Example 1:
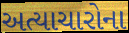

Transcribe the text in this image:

અત્યાચારોના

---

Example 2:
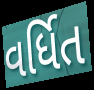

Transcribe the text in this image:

વર્ધિત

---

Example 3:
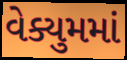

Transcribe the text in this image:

વેક્યુમમાં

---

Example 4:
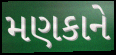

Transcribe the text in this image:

મણકાને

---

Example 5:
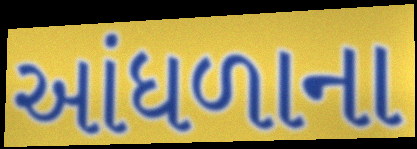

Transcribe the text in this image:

આંધળાના